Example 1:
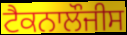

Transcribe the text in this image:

ਟੈਕਨਾਲੌਜੀਸ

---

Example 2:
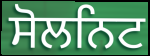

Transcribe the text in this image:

ਸੋਲਨਿਟ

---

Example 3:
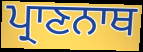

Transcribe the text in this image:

ਪ੍ਰਾਣਨਾਥ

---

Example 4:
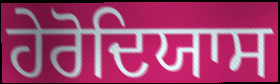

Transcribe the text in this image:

ਹੇਰੋਦਿਯਾਸ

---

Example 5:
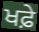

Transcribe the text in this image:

ਖਫ਼ੇ